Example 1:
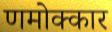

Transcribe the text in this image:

णमोक्कार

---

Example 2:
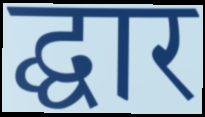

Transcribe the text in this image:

द्घार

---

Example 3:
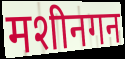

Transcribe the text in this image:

मशीनगन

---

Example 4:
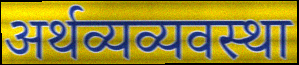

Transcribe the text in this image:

अर्थव्यव्यवस्था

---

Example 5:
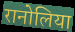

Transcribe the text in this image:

रानोलिया